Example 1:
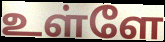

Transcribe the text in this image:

உள்ளே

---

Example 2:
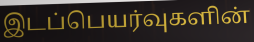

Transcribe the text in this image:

இடப்பெயர்வுகளின்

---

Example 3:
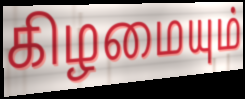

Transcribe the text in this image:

கிழமையும்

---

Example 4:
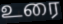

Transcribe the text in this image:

உரை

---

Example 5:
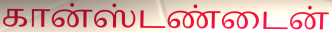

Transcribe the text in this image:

கான்ஸ்டண்டைன்